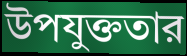
উপযুক্ততার